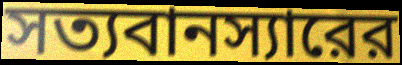
সত্যবানস্যারের